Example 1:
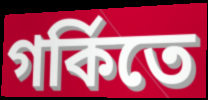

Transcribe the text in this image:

গর্কিতে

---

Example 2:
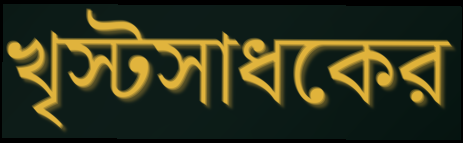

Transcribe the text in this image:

খৃস্টসাধকের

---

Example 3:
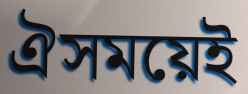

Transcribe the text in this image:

ঐসময়েই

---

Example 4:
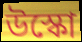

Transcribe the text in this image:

উস্কো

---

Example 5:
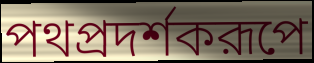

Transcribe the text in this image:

পথপ্রদর্শকরূপে